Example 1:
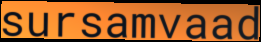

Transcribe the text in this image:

sursamvaad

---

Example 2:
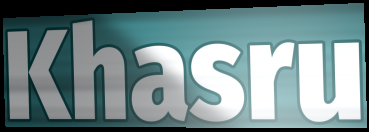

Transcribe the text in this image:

Khasru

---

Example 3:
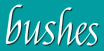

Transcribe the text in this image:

bushes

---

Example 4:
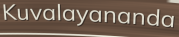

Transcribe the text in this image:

Kuvalayananda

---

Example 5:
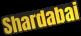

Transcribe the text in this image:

Shardabai